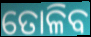
ତୋଳିବ